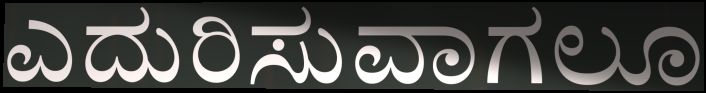
ಎದುರಿಸುವಾಗಲೂ